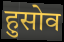
हुसोव